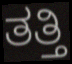
ತತ್ತಿ